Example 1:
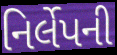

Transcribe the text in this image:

નિર્લેપની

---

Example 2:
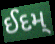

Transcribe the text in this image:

ઈદમ્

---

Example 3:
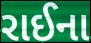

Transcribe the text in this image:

રાઈના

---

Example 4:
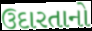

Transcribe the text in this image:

ઉદારતાનો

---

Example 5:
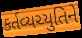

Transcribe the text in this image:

કર્તવ્યચ્યુતિને